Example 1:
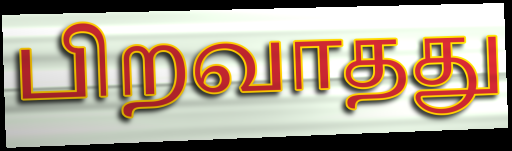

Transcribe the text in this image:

பிறவாதது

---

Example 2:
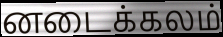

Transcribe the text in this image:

னடைக்கலம்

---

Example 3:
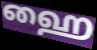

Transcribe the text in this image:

ஹை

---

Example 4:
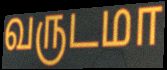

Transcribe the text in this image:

வருடமா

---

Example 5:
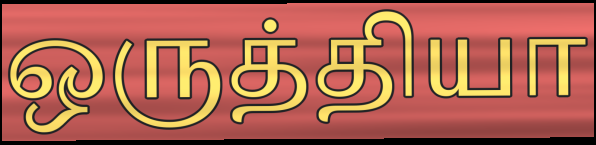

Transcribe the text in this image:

ஒருத்தியா